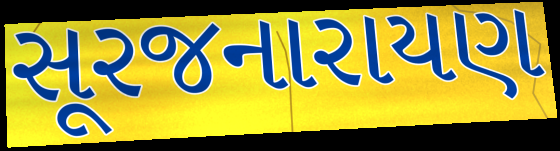
સૂરજનારાયણ